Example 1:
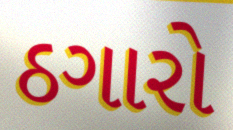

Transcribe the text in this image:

ઠગારો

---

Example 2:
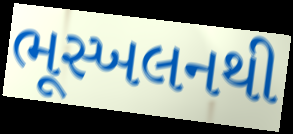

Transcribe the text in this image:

ભૂસ્ખલનથી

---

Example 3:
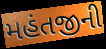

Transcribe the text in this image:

મહંતજીની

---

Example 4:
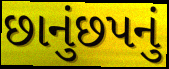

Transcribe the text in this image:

છાનુંછપનું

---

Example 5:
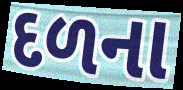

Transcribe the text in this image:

દળના